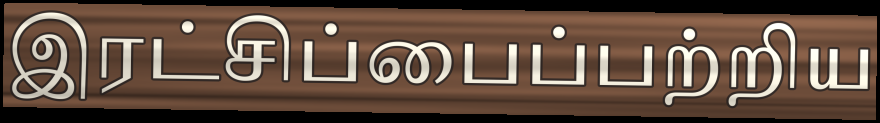
இரட்சிப்பைப்பற்றிய